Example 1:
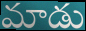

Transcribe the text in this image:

మాడు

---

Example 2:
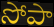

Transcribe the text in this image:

సోపా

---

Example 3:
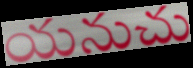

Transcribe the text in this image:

యనుచు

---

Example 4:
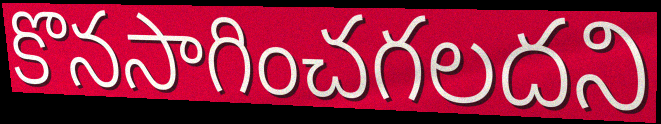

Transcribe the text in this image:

కొనసాగించగలదని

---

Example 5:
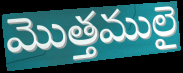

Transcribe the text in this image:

మొత్తములై